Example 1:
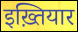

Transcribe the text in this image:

इख़्तियार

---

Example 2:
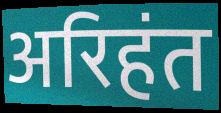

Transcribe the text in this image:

अरिहंत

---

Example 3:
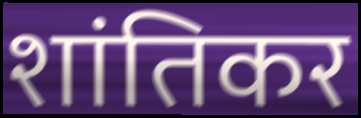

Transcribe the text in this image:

शांतिकर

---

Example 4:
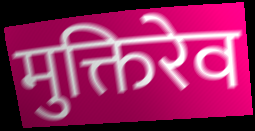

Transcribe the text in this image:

मुक्तिरेव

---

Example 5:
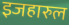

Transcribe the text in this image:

इजहारुल